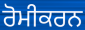
ਰੋਮੀਕਰਨ